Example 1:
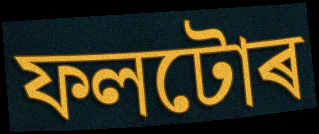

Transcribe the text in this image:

ফলটোৰ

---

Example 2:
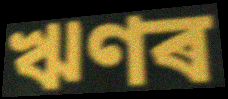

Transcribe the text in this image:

ঋণৰ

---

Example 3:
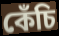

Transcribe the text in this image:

কেঁচি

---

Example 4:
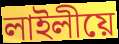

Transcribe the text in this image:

লাইলীয়ে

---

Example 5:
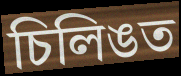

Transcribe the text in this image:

চিলিঙত